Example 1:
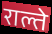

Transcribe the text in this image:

राल्ते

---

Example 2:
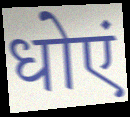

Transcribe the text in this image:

धोएं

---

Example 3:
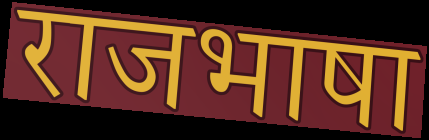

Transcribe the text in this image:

राजभाषा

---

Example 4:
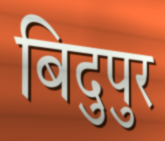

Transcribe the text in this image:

बिदुपुर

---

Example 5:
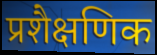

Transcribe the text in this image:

प्रशैक्षणिक